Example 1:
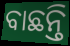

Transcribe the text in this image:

ବାଛନ୍ତି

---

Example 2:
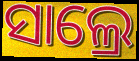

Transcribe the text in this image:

ସାଲ୍ରେ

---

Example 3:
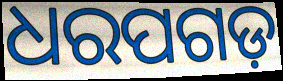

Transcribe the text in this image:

ଧରପଗଡ଼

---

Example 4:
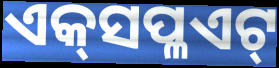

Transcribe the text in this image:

ଏକ୍‍ସପ୍ଳଏଟ୍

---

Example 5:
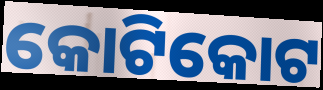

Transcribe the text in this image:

କୋଟିକୋଟ